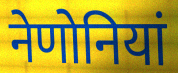
नेणोनियां